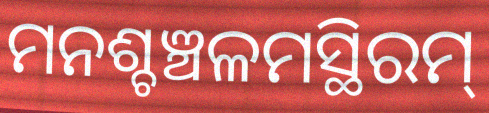
ମନଶ୍ଚଞ୍ଚଳମସ୍ଥିରମ୍